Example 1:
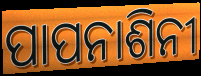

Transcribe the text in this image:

ପାପନାଶିନୀ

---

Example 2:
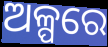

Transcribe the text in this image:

ଅଳ୍ପରେ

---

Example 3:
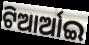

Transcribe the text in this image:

ଟିଆର୍ଆଇ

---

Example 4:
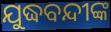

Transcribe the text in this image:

ଯୁଦ୍ଧବନ୍ଦୀଙ୍କ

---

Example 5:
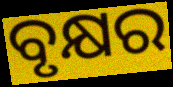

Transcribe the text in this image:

ବୃକ୍ଷର